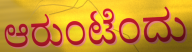
ಆರುಂಟೆಂದು